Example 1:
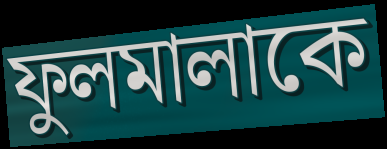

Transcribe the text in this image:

ফুলমালাকে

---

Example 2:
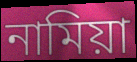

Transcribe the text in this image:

নামিয়া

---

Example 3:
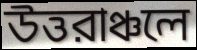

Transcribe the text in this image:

উত্তরাঞ্চলে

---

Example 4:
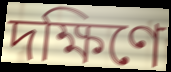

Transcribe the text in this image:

দক্ষিণে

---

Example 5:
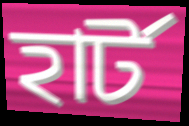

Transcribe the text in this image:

হার্ট